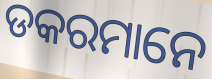
ଡକରମାନେ